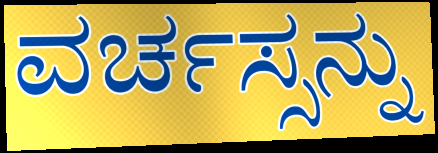
ವರ್ಚಸ್ಸನ್ನು